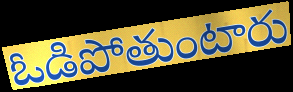
ఓడిపోతుంటారు